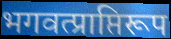
भगवत्प्राप्तिरूप